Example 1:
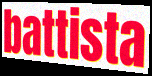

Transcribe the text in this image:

battista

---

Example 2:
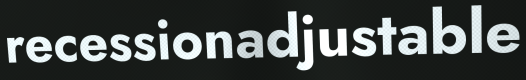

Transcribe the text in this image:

recessionadjustable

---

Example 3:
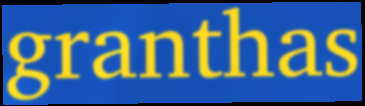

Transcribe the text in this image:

granthas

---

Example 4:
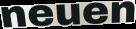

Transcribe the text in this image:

neuen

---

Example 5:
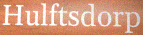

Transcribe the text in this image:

Hulftsdorp